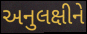
અનુલક્ષીને